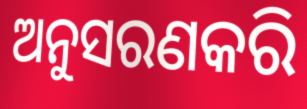
ଅନୁସରଣକରି